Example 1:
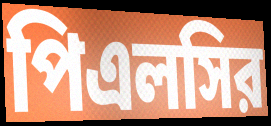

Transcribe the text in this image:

পিএলসির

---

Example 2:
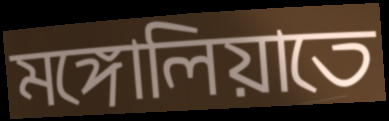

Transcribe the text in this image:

মঙ্গোলিয়াতে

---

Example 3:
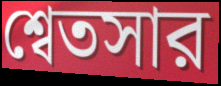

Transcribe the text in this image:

শ্বেতসার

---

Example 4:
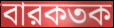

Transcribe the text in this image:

বারকতক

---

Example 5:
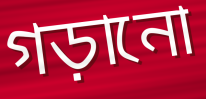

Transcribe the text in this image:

গড়ানো